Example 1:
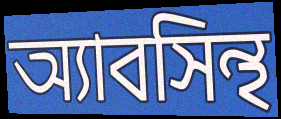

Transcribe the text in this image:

অ্যাবসিন্থ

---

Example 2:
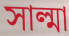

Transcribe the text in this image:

সাল্মা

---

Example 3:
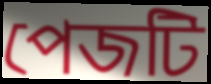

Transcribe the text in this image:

পেজটি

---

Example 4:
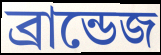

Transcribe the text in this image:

ব্রান্ডেজ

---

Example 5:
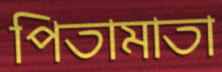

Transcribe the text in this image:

পিতামাতা